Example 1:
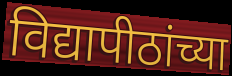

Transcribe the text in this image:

विद्यापीठांच्या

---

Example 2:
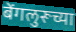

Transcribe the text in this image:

बेंगलुरूच्या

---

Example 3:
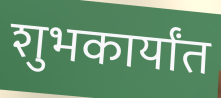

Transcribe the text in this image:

शुभकार्यांत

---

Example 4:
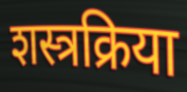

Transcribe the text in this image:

शस्त्रक्रिया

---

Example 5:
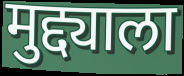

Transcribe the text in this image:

मुद्द्याला